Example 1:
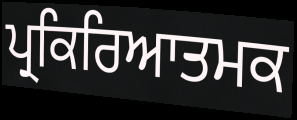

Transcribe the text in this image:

ਪ੍ਰਕਿਰਿਆਤਮਕ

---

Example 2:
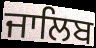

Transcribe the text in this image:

ਜਾਲਿਬ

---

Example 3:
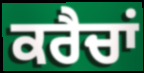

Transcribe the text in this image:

ਕਰੈਚਾਂ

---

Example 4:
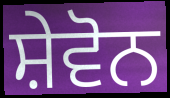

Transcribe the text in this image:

ਸ਼ੇਵੋਨ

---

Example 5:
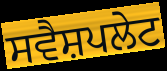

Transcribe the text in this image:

ਸਵੈਸ਼ਪਲੇਟ